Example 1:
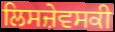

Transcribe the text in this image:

ਲਿਸਜ਼ੇਵਸਕੀ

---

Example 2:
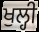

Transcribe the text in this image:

ਖੁਲ੍ਹੀ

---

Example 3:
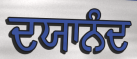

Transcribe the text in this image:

ਦਯਾਨੰਦ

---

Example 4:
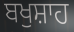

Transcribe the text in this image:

ਬਖੁਸ਼ਾਹ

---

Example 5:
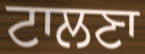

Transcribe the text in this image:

ਟਾਲਣਾ